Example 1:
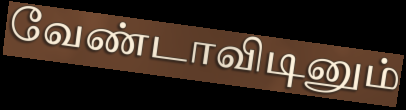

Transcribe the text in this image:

வேண்டாவிடினும்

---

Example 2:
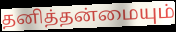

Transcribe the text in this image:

தனித்தன்மையும்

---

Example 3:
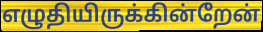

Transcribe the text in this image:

எழுதியிருக்கின்றேன்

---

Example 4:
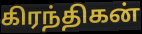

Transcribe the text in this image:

கிரந்திகன்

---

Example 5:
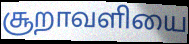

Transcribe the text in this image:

சூறாவளியை